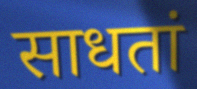
साधतां